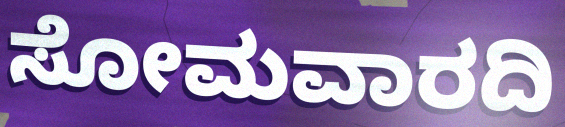
ಸೋಮವಾರದಿ